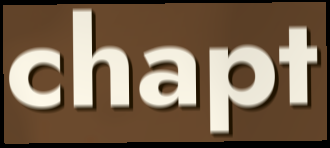
chapt